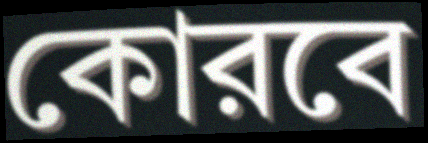
কোরবে